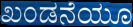
ಖಂಡನೆಯೂ